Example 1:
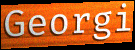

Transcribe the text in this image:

Georgi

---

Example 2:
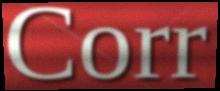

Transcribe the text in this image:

Corr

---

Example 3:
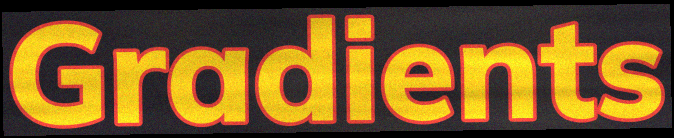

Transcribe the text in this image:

Gradients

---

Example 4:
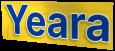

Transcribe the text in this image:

Yeara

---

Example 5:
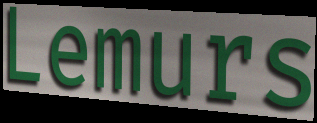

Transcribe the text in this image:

Lemurs